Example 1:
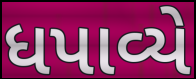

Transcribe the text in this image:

ધપાવ્યે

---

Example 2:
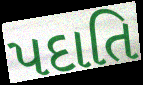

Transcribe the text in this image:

પદાતિ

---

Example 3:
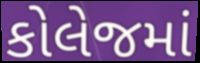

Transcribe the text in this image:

કોલેજમાં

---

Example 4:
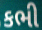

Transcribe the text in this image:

કભી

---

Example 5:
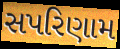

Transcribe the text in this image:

સપરિણામ